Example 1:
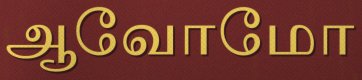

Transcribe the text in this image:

ஆவோமோ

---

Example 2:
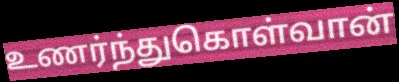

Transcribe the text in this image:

உணர்ந்துகொள்வான்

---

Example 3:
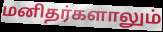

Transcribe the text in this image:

மனிதர்களாலும்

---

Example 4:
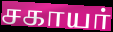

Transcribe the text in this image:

சகாயர்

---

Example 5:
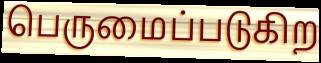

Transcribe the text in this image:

பெருமைப்படுகிற